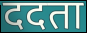
ददता